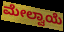
ಮೇಲ್ವಾಯೆ